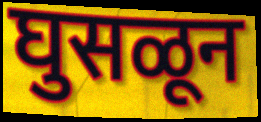
घुसळून